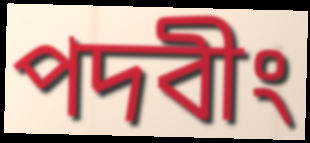
পদবীং